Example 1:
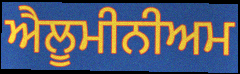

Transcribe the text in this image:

ਐਲੂਮੀਨੀਅਮ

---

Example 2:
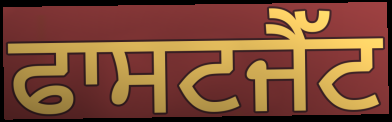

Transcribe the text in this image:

ਫਾਸਟਜੈੱਟ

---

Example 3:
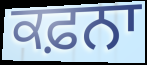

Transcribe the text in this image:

ਕਫ਼ਨਾ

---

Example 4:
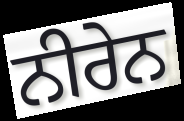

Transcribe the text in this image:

ਨੀਰੇਨ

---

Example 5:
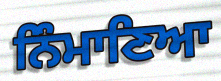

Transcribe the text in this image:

ਨਿੰਮਾਣਿਆ